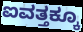
ಐವತ್ತಕ್ಕೂ